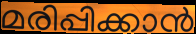
മരിപ്പിക്കാൻ